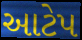
આટેપ